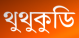
থুথুকুডি